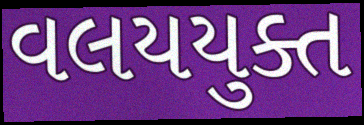
વલયયુક્ત